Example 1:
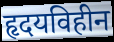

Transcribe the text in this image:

हृदयविहीन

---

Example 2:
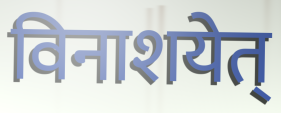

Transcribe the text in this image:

विनाशयेत्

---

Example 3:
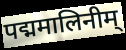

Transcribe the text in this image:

पद्ममालिनीम्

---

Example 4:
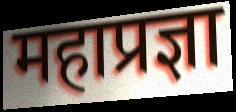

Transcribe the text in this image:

महाप्रज्ञा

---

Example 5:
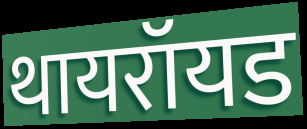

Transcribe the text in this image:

थायरॉयड